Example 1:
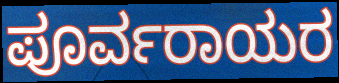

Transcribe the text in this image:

ಪೂರ್ವರಾಯರ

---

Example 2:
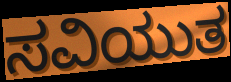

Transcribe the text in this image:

ಸವಿಯುತ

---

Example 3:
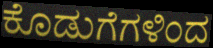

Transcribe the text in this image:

ಕೊಡುಗೆಗಳಿಂದ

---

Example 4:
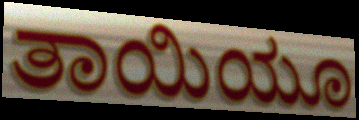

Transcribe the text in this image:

ತಾಯಿಯೂ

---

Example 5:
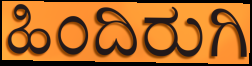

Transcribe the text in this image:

ಹಿಂದಿರುಗಿ